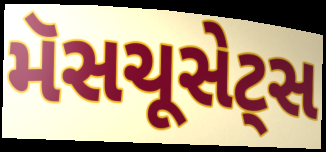
મૅસચૂસેટ્સ